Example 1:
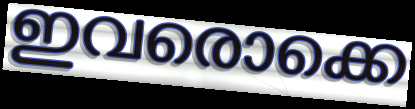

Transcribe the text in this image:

ഇവരൊക്കെ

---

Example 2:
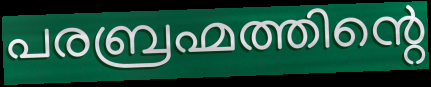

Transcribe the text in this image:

പരബ്രഹ്മത്തിന്റെ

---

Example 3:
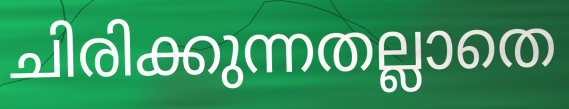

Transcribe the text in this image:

ചിരിക്കുന്നതല്ലാതെ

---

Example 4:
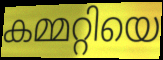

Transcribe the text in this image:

കമ്മറ്റിയെ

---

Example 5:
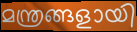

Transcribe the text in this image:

മന്ത്രങ്ങളായി